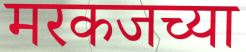
मरकजच्या